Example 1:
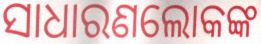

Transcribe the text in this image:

ସାଧାରଣଲୋକଙ୍କ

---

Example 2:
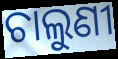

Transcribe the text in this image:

ଚାଲୁଣୀ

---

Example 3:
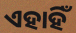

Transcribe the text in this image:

ଏହାହିଁ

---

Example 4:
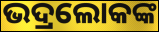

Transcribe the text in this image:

ଭଦ୍ରଲୋକଙ୍କ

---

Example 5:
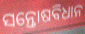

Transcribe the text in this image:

ସନ୍ତୋଷବିଧାନ